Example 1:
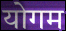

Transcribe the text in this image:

योगम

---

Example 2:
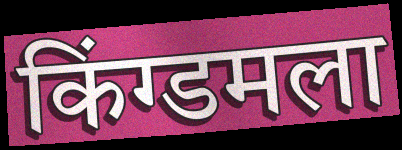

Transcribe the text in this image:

किंग्डमला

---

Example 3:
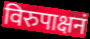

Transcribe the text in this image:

विरुपाक्षनं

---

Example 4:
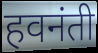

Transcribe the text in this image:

हवनंती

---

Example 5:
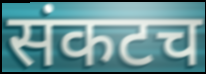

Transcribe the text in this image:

संकटच